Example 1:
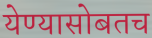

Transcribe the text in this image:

येण्यासोबतच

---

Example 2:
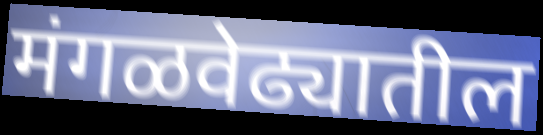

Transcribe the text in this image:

मंगळवेढ्यातील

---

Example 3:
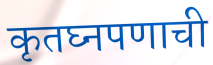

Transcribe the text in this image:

कृतघ्नपणाची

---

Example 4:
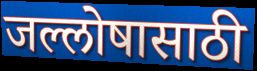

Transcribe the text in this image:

जल्लोषासाठी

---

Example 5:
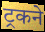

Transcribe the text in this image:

ट्रकने